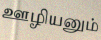
ஊழியனும்